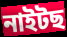
নাইটছ